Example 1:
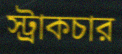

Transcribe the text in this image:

স্ট্রাকচার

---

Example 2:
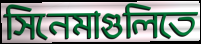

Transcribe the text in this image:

সিনেমাগুলিতে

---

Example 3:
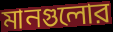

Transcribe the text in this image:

মানগুলোর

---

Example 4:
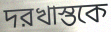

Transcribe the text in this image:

দরখাস্তকে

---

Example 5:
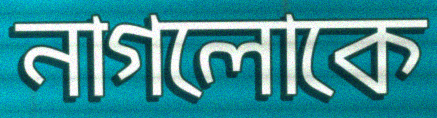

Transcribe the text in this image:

নাগলোকে